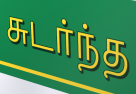
சுடர்ந்த